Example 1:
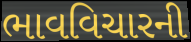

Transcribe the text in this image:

ભાવવિચારની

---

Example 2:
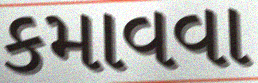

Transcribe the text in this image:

કમાવવા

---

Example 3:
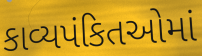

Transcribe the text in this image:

કાવ્યપંકિતઓમાં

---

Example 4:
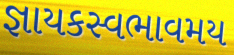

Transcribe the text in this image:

જ્ઞાયકસ્વભાવમય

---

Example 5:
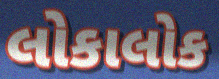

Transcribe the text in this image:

લોકાલોક